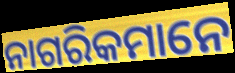
ନାଗରିକମାନେ